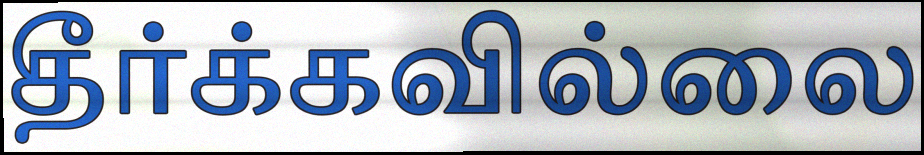
தீர்க்கவில்லை